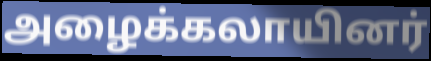
அழைக்கலாயினர்